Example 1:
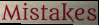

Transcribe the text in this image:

Mistakes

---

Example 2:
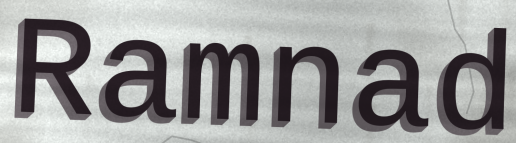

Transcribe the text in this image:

Ramnad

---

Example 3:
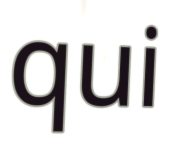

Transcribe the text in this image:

qui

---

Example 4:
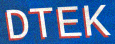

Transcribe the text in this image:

DTEK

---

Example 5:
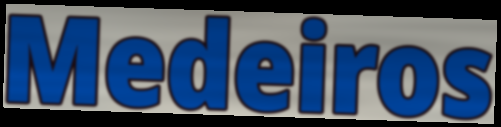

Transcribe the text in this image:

Medeiros